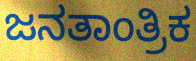
ಜನತಾಂತ್ರಿಕ